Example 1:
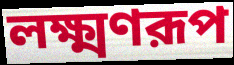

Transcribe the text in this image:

লক্ষ্মণরূপ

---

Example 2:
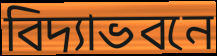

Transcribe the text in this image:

বিদ্যাভবনে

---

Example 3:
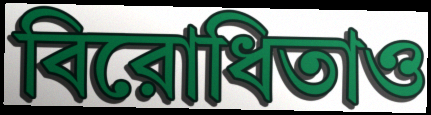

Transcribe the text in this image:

বিরোধিতাও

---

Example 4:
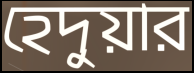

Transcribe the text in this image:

হেদুয়ার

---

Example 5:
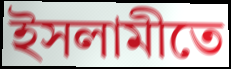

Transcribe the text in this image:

ইসলামীতে